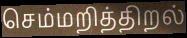
செம்மறித்திறல்